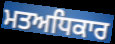
ਮਤਅਧਿਕਾਰ